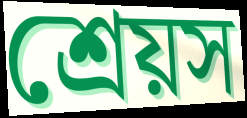
শ্রেয়স